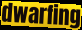
dwarfing